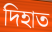
দিহাত